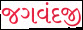
જગવંદજી